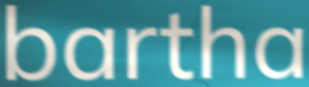
bartha